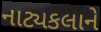
નાટ્યકલાને